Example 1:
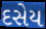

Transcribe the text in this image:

દસેય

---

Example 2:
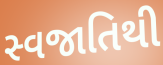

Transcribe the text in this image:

સ્વજાતિથી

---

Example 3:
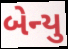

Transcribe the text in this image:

બેન્યુ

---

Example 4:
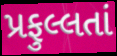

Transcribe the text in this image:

પ્રફુલ્લતાં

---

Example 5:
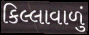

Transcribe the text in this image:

કિલ્લાવાળું